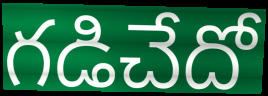
గడిచేదో